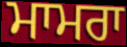
ਮਾਮਰਾ